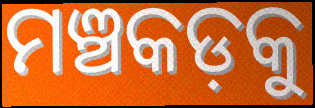
ମଞ୍ଚକଡ଼କୁ